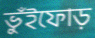
ভুঁইফোড়